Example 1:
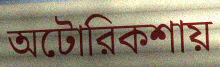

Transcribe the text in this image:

অটোরিকশায়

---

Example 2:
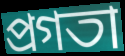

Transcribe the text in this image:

প্রগতা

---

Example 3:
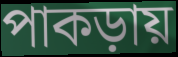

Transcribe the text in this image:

পাকড়ায়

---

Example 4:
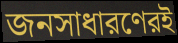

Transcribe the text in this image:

জনসাধারণেরই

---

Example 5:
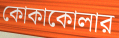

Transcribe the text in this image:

কোকাকোলার